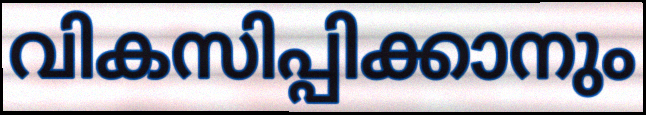
വികസിപ്പിക്കാനും